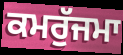
ਕਮਰੁੱਜਮਾ